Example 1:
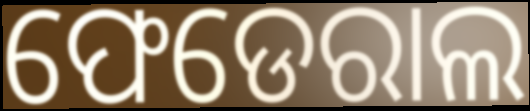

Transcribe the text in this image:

ଫେଡେରାଲ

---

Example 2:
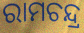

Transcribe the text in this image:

ରାମଚନ୍ଦ୍ର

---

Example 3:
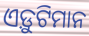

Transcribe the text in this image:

ଏଡ଼ୁଟିମାନ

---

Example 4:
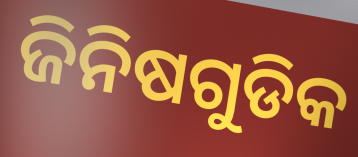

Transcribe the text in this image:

ଜିନିଷଗୁଡିକ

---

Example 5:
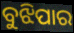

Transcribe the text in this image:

ବୁଝିପାର